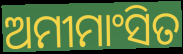
ଅମୀମାଂସିତ